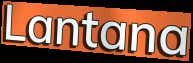
Lantana